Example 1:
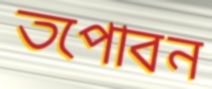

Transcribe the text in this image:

তপোবন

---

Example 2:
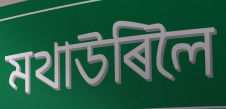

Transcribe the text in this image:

মথাউৰিলৈ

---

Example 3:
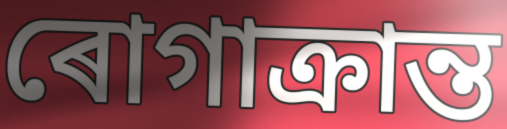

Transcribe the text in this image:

ৰোগাক্ৰান্ত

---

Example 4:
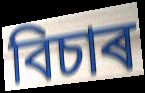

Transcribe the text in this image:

বিচাৰ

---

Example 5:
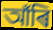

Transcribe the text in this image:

আঁৰি